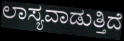
ಲಾಸ್ಯವಾಡುತ್ತಿದೆ